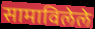
सामाविलेले